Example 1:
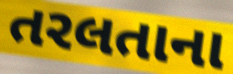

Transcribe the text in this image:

તરલતાના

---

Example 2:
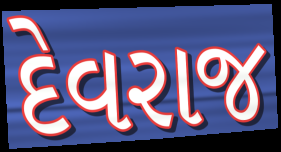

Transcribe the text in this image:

દેવરાજ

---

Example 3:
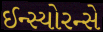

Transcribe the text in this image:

ઈન્સ્યોરન્સે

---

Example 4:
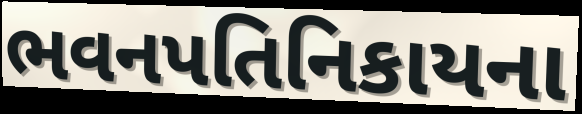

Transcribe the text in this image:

ભવનપતિનિકાયના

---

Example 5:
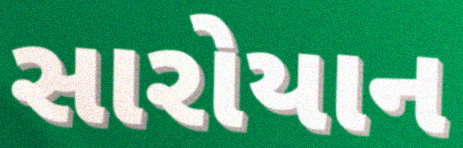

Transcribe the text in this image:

સારોયાન